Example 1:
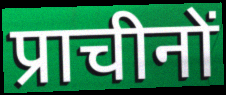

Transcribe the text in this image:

प्राचीनों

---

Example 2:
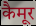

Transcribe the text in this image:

कैमूर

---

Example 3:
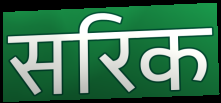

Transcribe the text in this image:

सरिक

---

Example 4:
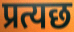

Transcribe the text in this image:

प्रत्यछ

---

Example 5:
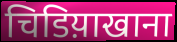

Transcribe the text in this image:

चिडिय़ाखाना